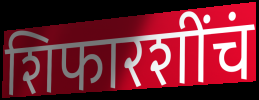
शिफारशींचं